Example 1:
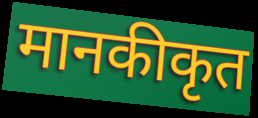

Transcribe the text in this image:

मानकीकृत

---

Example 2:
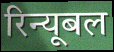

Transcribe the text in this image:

रिन्यूबल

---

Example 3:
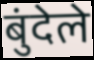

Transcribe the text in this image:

बुंदेले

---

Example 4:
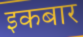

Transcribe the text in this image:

इकबार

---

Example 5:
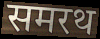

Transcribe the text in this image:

समरथ